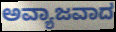
ಅವ್ಯಾಜವಾದ